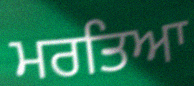
ਮਰਤਿਆ